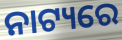
ନାଟ୍ୟରେ